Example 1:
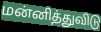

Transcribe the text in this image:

மன்னித்துவிடு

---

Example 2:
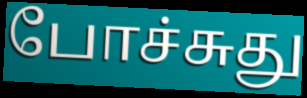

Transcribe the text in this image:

போச்சுது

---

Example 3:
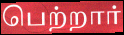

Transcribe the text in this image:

பெற்றார்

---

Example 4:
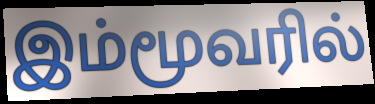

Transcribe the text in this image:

இம்மூவரில்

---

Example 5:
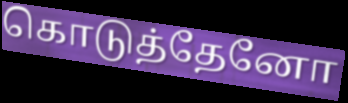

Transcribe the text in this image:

கொடுத்தேனோ